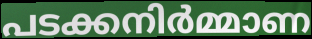
പടക്കനിർമ്മാണ